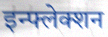
इन्फ्लेक्शन